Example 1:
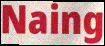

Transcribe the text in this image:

Naing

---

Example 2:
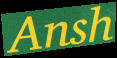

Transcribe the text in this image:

Ansh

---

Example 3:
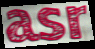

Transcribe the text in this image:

asr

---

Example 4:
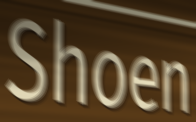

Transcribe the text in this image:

Shoen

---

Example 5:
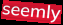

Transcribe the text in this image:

seemly